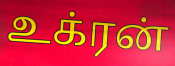
உக்ரன்